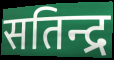
सतिन्द्र